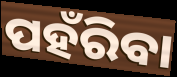
ପହଁରିବା